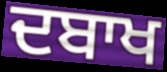
ਦਬਾਖ